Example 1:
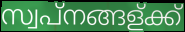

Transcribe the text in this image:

സ്വപ്നങ്ങള്ക്ക്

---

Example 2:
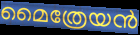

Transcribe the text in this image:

മൈത്രേയൻ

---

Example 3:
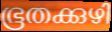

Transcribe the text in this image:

ഭൂതക്കുഴി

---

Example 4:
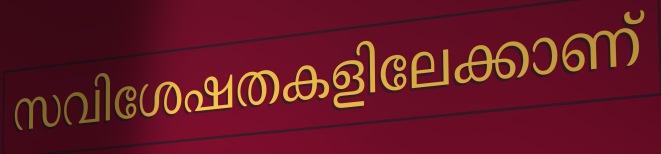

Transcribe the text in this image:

സവിശേഷതകളിലേക്കാണ്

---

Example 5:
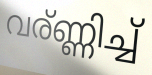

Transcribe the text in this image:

വര്ണ്ണിച്ച്